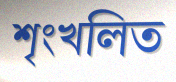
শৃংখলিত